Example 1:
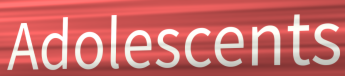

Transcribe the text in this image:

Adolescents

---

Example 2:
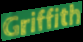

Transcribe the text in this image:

Griffith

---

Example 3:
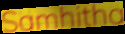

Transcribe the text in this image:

Samhitha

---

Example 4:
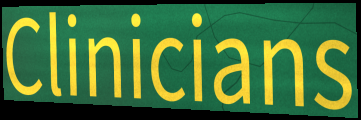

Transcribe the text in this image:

Clinicians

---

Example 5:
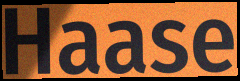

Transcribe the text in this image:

Haase